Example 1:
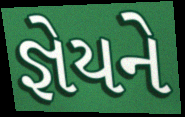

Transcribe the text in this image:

જ્ઞેયને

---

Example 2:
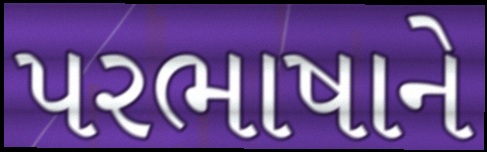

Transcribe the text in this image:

પરભાષાને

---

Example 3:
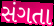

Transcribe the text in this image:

સંગતા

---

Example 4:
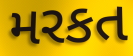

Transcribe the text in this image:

મરકત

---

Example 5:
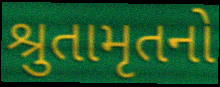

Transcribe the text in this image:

શ્રુતામૃતનો